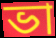
ভা